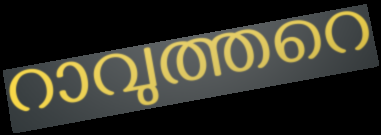
റാവുത്തറെ